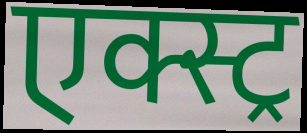
एक्स्ट्र